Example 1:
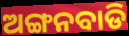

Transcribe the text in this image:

ଅଙ୍ଗନବାଡି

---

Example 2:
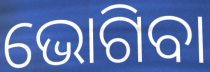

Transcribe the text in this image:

ଭୋଗିବା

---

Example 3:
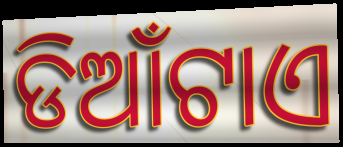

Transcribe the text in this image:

ଡିଆଁଟାଏ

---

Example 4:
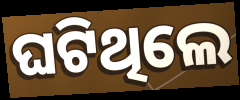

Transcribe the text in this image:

ଘଟିଥିଲେ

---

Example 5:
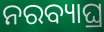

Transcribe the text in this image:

ନରବ୍ୟାଘ୍ର